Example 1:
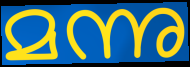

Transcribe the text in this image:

മന്നു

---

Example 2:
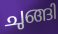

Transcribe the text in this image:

ചുങ്ങി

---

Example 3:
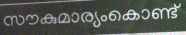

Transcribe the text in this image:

സൗകുമാര്യംകൊണ്ട്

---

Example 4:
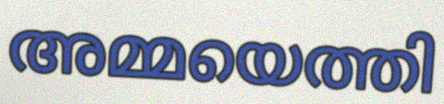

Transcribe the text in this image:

അമ്മയെത്തി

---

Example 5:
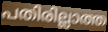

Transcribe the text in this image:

പതിരില്ലാത്ത